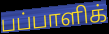
பப்பாளிக்